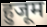
हुजूम